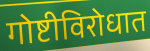
गोष्टीविरोधात